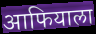
आफियाला